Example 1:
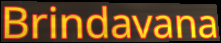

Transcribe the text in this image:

Brindavana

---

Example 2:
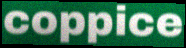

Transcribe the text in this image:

coppice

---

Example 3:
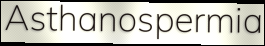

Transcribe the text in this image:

Asthanospermia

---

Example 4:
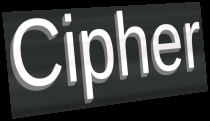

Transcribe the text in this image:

Cipher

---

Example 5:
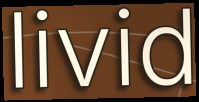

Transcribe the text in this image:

livid